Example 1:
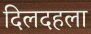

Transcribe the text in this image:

दिलदहला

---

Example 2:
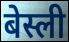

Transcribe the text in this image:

बेस्ली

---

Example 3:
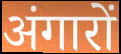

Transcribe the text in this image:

अंगारों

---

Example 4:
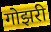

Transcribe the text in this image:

गोझरी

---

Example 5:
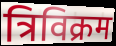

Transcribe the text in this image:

त्रिविक्रम